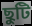
ছুটি